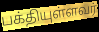
பக்தியுள்ளவர்